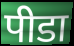
पीडा